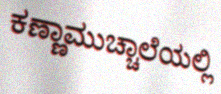
ಕಣ್ಣಾಮುಚ್ಚಾಲೆಯಲ್ಲಿ